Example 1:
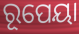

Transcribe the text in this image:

ରୂପେୟା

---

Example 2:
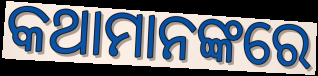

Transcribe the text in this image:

କଥାମାନଙ୍କରେ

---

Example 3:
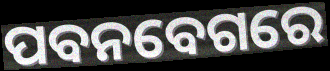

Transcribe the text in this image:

ପବନବେଗରେ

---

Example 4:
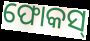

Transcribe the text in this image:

ଫୋକସ୍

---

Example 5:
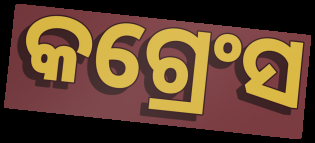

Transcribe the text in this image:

କଗ୍ରେଂସ